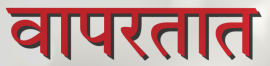
वापरतात